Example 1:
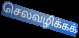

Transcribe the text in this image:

செலவழிக்கக்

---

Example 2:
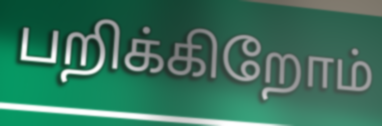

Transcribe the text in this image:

பறிக்கிறோம்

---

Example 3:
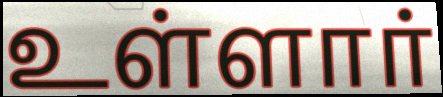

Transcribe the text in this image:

உள்ளார்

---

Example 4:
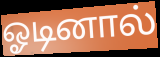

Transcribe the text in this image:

ஓடினால்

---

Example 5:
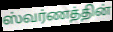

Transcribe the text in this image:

ஸ்வர்ணத்தின்